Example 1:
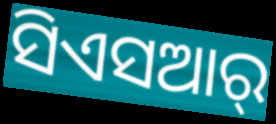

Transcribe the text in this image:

ସିଏସଆର୍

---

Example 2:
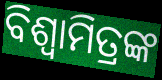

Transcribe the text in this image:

ବିଶ୍ବାମିତ୍ରଙ୍କ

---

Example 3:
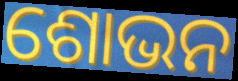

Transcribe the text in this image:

ଶୋଭନ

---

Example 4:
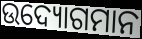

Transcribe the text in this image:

ଉଦ୍ୟୋଗମାନ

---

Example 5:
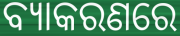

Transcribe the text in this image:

ବ୍ୟାକରଣରେ